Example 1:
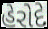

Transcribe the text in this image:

હેરોદે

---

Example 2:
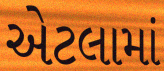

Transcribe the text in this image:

એટલામાં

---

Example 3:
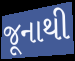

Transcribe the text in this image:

જૂનાથી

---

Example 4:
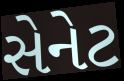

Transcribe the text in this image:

સેનેટ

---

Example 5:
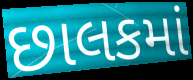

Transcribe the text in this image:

છાલકમાં